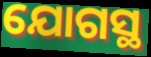
ଯୋଗସ୍ଥ